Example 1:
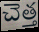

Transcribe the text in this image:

చెత్త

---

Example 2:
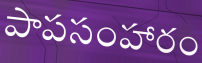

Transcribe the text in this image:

పాపసంహారం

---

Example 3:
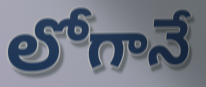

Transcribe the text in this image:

లోగానే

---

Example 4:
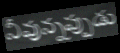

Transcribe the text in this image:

నీవున్నప్పుడు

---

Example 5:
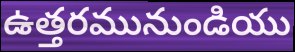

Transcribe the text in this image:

ఉత్తరమునుండియు